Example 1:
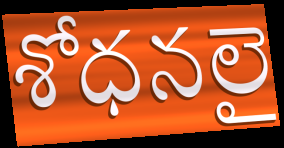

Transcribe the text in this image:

శోధనలై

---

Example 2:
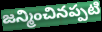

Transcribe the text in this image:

జన్మించినప్పటి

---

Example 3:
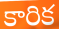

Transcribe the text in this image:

కారిక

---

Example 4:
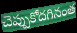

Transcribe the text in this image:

చెప్పుకోదగినంత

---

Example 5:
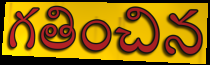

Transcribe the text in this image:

గతించిన